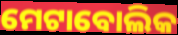
ମେଟାବୋଲିକ